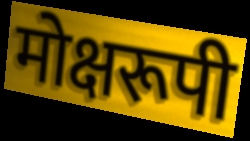
मोक्षरूपी